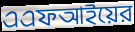
এএফআইয়ের